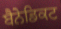
ਬੈਨੇਡਿਕਟ